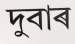
দুবাৰ